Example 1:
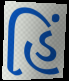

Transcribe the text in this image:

હિં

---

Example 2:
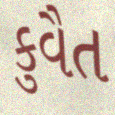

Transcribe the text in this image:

કુવૈત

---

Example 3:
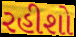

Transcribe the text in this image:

રહીશો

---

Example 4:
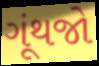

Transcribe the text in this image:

ગૂંથજો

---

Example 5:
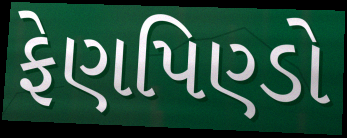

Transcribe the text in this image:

ફેણપિણ્ડો